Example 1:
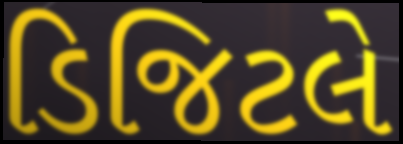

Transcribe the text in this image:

ડિજિટલે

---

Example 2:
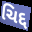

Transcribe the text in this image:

ચિદ્દ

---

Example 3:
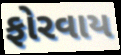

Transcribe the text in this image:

ફોરવાય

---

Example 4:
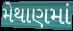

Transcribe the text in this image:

મેથાણમાં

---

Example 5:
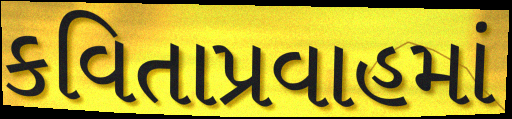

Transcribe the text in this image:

કવિતાપ્રવાહમાં